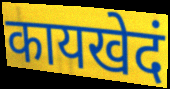
कायखेदं